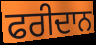
ਫਰੀਦਾਨ